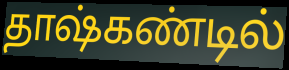
தாஷ்கண்டில்